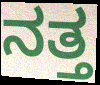
ನತ್ತ